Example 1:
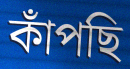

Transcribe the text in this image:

কাঁপছি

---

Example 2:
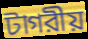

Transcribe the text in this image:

টাগরীয়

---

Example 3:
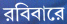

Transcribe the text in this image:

রবিবারে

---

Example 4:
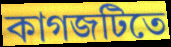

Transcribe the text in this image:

কাগজটিতে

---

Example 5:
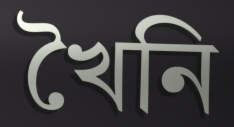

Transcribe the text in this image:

খৈনি